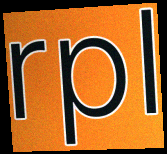
rpl